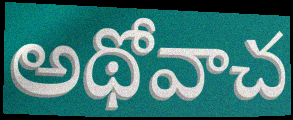
అథోవాచ